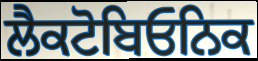
ਲੈਕਟੋਬਿਓਨਿਕ